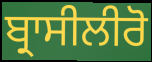
ਬ੍ਰਾਸੀਲੀਰੋ